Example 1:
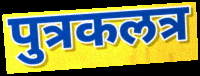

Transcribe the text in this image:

पुत्रकलत्र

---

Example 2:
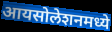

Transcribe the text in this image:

आयसोलेशनमध्ये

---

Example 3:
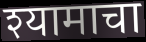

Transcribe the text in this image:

श्यामाचा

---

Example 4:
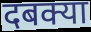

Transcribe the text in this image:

दबक्या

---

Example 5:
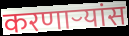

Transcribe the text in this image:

करणाऱ्यांस